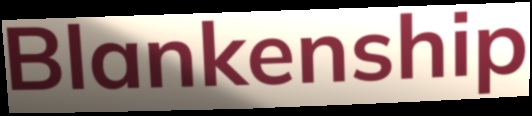
Blankenship